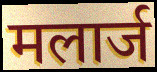
मलार्ज